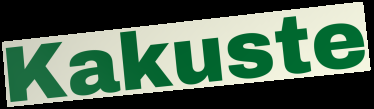
Kakuste